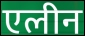
एलीन